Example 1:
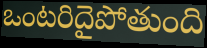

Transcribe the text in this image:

ఒంటరిదైపోతుంది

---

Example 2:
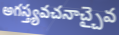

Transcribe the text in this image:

అగస్త్యవచనాచ్చైవ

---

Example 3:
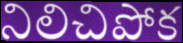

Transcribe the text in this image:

నిలిచిపోక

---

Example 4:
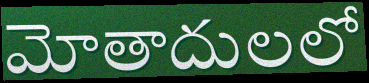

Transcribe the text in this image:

మోతాదులలో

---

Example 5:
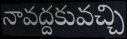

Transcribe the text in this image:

నావద్దకువచ్చి